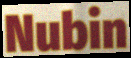
Nubin